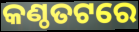
କଣ୍ଠତଟରେ